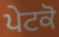
ਪੇਟਕੋ